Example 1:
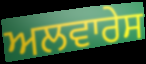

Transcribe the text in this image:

ਅਲਵਾਰੇਸ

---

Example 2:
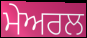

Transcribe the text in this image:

ਮੇਅਰਲ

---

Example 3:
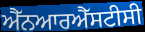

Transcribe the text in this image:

ਐੱਨਆਰਐੱਸਟੀਸੀ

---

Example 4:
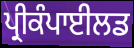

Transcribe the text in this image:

ਪ੍ਰੀਕੰਪਾਈਲਡ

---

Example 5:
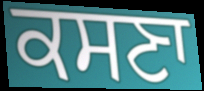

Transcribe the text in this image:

ਕਸਣਾ